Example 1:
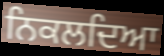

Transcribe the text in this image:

ਨਿਕਲਦਿਆ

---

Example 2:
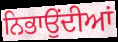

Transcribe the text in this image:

ਨਿਭਾਉਂਦੀਆਂ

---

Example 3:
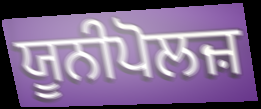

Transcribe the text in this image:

ਯੂਨੀਪੋਲਜ਼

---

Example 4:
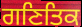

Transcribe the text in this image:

ਗਣਿਤਿਕ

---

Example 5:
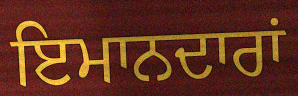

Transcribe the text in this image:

ਇਮਾਨਦਾਰਾਂ